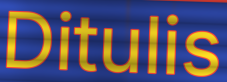
Ditulis